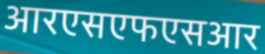
आरएसएफएसआर